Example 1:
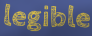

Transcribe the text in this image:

legible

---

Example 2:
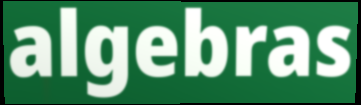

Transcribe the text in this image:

algebras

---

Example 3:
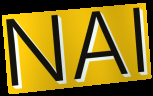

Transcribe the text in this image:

NAI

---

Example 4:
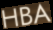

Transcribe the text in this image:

HBA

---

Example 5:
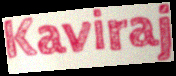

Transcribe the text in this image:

Kaviraj